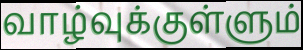
வாழ்வுக்குள்ளும்